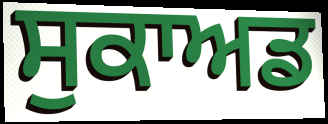
ਸੁਕਾਅਡ